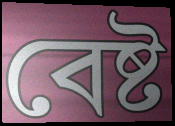
বেষ্ট